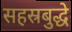
सहस्रबुद्धे